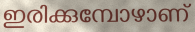
ഇരിക്കുമ്പോഴാണ്